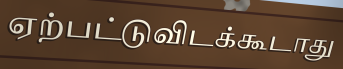
ஏற்பட்டுவிடக்கூடாது